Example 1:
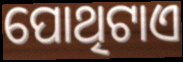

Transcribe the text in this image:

ପୋଥିଟାଏ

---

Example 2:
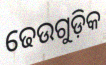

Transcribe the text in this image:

ଢେଉଗୁଡ଼ିକ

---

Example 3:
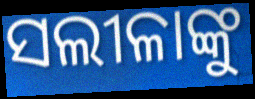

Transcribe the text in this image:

ସଲୀଳାଙ୍କୁ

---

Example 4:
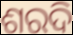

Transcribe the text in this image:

ଶରଦି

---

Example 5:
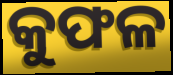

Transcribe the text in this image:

କୁଫଳ